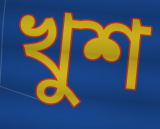
খুশ